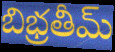
బిభ్రతీమ్